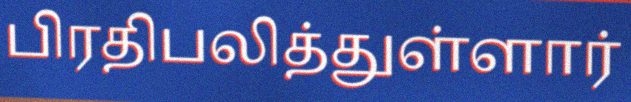
பிரதிபலித்துள்ளார்